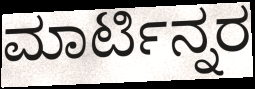
ಮಾರ್ಟಿನ್ನರ